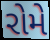
રોમે